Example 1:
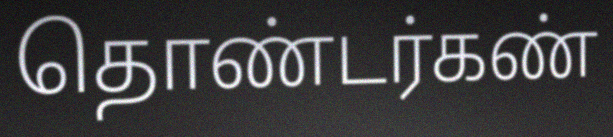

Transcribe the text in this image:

தொண்டர்கண்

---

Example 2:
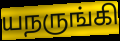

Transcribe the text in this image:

யநருங்கி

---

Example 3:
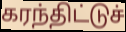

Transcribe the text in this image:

கரந்திட்டுச்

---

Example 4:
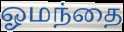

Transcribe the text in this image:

ஓமந்தை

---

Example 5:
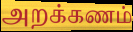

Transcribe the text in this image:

அறக்கணம்